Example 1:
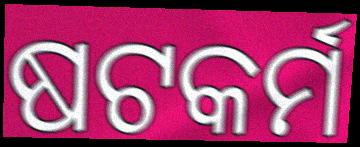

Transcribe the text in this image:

ଷଟକର୍ମ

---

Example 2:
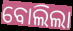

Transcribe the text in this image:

ବୋଲିଲା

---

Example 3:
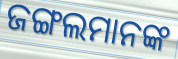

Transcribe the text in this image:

ଜଙ୍ଗଲମାନଙ୍କ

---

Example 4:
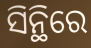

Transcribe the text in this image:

ସିନ୍ଥିରେ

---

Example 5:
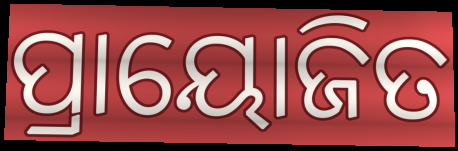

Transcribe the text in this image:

ପ୍ରାୟୋଜିତ